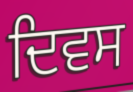
ਦਿਵਸ